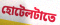
হোটেলটাতে